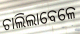
ଚାଲିଲାବେଳେ